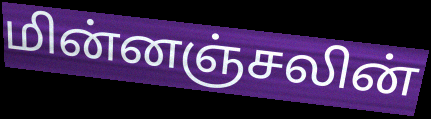
மின்னஞ்சலின்